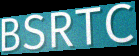
BSRTC